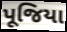
પૂજિયા